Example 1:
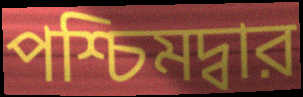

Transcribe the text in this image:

পশ্চিমদ্বার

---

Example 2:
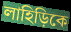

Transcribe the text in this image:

লাহিড়িকে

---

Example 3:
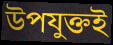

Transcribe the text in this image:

উপযুক্তই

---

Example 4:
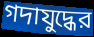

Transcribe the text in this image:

গদাযুদ্ধের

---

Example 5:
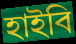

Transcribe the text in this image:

হাইবি